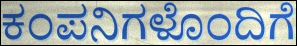
ಕಂಪನಿಗಳೊಂದಿಗೆ